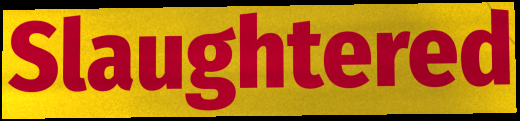
Slaughtered